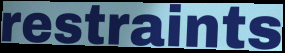
restraints